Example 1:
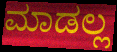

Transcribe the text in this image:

ಮಾಡಲ್ಲ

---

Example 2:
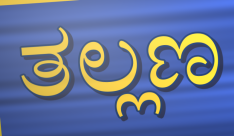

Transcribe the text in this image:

ತಲ್ಲಣ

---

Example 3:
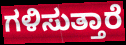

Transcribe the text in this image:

ಗಳಿಸುತ್ತಾರೆ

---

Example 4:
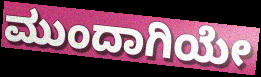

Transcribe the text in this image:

ಮುಂದಾಗಿಯೇ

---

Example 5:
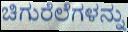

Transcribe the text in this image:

ಚಿಗುರೆಲೆಗಳನ್ನು